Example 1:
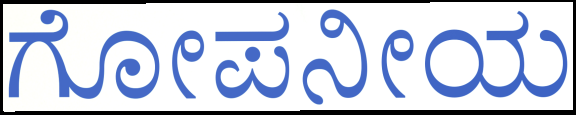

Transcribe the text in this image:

ಗೋಪನೀಯ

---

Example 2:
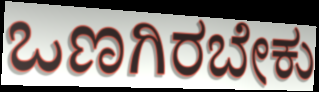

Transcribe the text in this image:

ಒಣಗಿರಬೇಕು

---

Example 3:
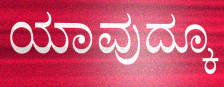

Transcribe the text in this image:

ಯಾವುದ್ಕೂ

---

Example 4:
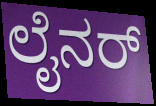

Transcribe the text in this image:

ಲೈನರ್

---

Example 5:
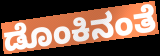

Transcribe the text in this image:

ಡೊಂಕಿನಂತೆ